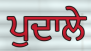
ਪੁਦਾਲੇ